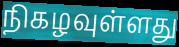
நிகழவுள்ளது